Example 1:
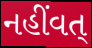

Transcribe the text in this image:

નહીંવત્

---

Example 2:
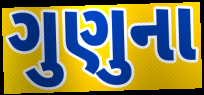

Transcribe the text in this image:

ગુણુના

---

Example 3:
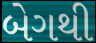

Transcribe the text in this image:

બેગથી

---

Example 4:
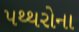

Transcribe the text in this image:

પથ્થરોના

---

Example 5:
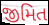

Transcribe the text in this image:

જીમિત